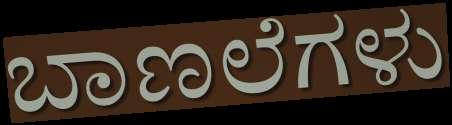
ಬಾಣಲೆಗಳು